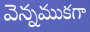
వెన్నముకగా